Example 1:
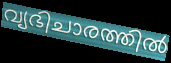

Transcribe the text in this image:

വ്യഭിചാരത്തിൽ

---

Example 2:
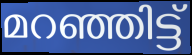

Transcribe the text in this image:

മറഞ്ഞിട്ട്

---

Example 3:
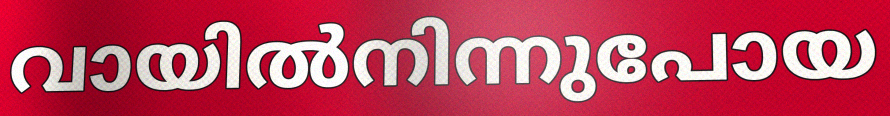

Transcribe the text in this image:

വായിൽനിന്നുപോയ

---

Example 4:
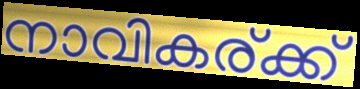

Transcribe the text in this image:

നാവികര്ക്ക്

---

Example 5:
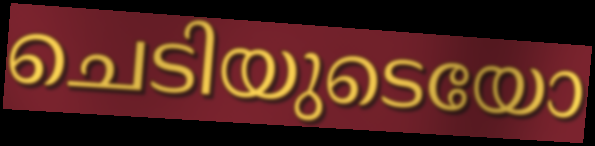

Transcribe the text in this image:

ചെടിയുടെയോ